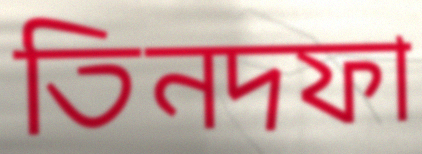
তিনদফা